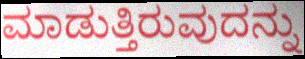
ಮಾಡುತ್ತಿರುವುದನ್ನು